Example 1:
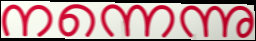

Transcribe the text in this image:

നന്നെന്നു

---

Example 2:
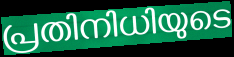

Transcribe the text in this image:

പ്രതിനിധിയുടെ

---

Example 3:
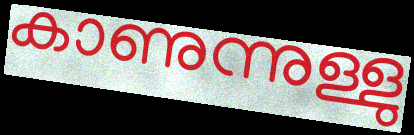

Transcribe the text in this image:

കാണുന്നുള്ളു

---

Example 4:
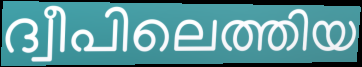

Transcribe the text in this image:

ദ്വീപിലെത്തിയ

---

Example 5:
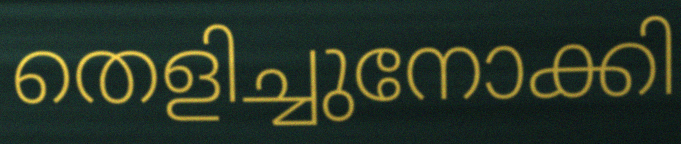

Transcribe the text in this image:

തെളിച്ചുനോക്കി